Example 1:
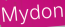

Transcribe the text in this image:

Mydon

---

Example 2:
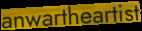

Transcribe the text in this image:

anwartheartist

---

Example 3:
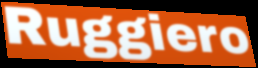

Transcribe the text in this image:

Ruggiero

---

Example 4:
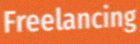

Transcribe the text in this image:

Freelancing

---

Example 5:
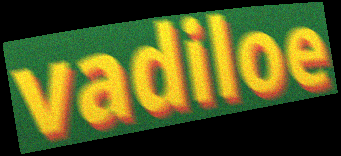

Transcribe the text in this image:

vadiloe